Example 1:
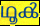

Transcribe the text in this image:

ഥൂൿ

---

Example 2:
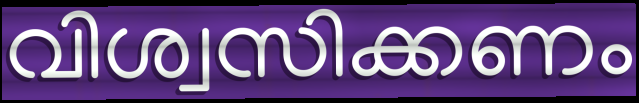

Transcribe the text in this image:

വിശ്വസിക്കണം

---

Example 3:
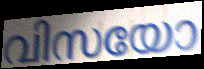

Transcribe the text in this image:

വിസയോ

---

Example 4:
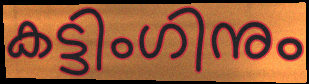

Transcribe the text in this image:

കട്ടിംഗിനും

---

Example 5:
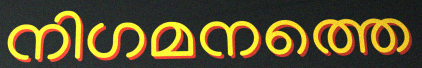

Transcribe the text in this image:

നിഗമനത്തെ